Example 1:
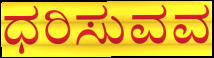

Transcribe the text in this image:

ಧರಿಸುವವ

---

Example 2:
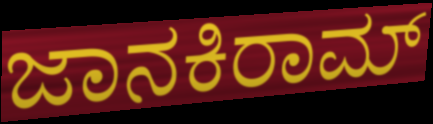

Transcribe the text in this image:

ಜಾನಕಿರಾಮ್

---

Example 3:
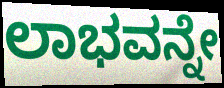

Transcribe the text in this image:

ಲಾಭವನ್ನೇ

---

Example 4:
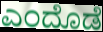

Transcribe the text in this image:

ಎಂದೊಡೆ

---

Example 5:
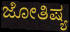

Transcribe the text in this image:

ಜೋತಿಷ್ಯ